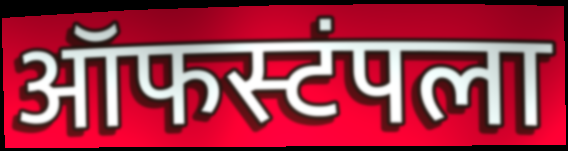
ऑफस्टंपला